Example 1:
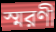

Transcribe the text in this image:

স্মরণী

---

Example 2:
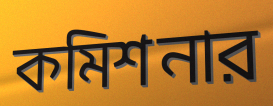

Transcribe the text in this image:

কমিশনার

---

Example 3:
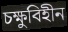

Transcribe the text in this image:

চক্ষুবিহীন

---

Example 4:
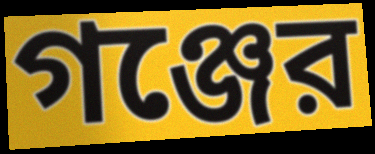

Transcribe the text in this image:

গঞ্জের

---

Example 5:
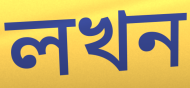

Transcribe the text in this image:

লখন